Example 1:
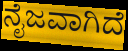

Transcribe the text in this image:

ನೈಜವಾಗಿದೆ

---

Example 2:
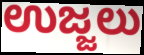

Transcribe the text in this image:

ಉಜ್ಜಲು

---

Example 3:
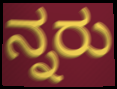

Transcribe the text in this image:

ನ್ನರು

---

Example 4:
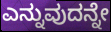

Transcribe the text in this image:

ಎನ್ನುವುದನ್ನೇ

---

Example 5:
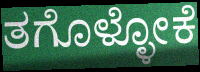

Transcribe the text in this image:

ತಗೊಳ್ಳೋಕೆ